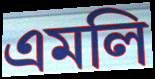
এমলি